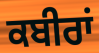
ਕਬੀਰਾਂ